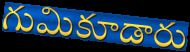
గుమికూడారు